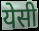
येसी